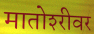
मातोश्रीवर